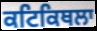
ਕਟਿਕਿਥਲਾ